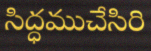
సిద్ధముచేసిరి